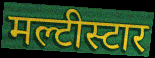
मल्टीस्टार